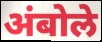
अंबोले